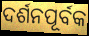
ଦର୍ଶନପୂର୍ବକ